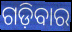
ଗଡ଼ିବାର